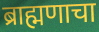
ब्राह्मणाचा